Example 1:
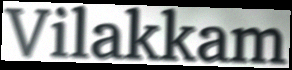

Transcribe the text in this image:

Vilakkam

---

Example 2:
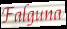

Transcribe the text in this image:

Falguna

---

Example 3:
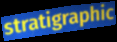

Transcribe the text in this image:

stratigraphic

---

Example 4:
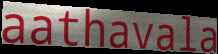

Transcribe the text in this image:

aathavala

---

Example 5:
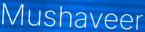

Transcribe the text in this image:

Mushaveer